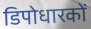
डिपोधारकों